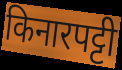
किनारपट्टी